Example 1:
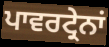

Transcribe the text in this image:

ਪਾਵਰਟ੍ਰੇਨਾਂ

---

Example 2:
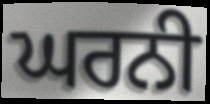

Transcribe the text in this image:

ਘਰਨੀ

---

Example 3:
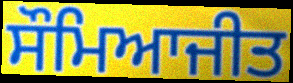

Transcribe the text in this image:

ਸੌਮਿਆਜੀਤ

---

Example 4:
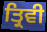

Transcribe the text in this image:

ਤ੍ਰਿਵੀ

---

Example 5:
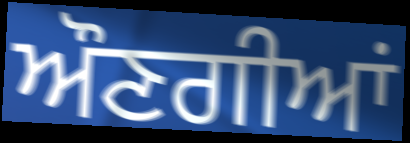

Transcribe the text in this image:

ਔਣਗੀਆਂ